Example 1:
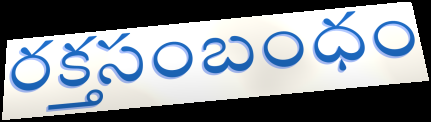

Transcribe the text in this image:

రక్తసంబంధం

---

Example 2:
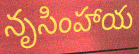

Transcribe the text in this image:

నృసింహాయ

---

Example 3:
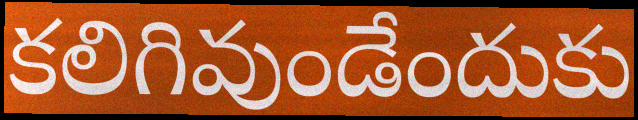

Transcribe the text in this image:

కలిగివుండేందుకు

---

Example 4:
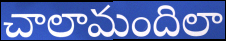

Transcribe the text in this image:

చాలామందిలా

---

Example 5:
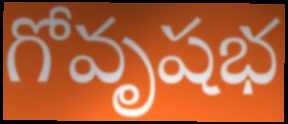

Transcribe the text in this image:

గోవృషభ